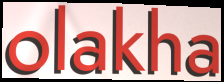
olakha